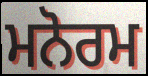
ਮਨੋਰਮ